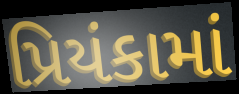
પ્રિયંકામાં